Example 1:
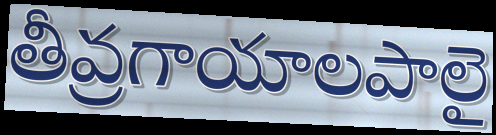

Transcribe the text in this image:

తీవ్రగాయాలపాలై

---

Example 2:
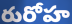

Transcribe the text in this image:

రురోహ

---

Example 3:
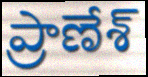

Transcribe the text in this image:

ప్రాణేశ్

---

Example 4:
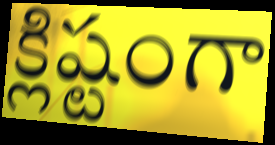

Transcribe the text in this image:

క్లిష్టంగా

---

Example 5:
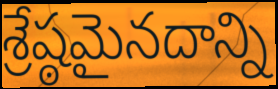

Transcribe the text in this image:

శ్రేష్ఠమైనదాన్ని